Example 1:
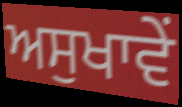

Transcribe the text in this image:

ਅਸੁਖਾਵੇਂ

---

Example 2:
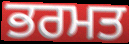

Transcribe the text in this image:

ਭਰਮਤ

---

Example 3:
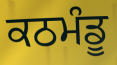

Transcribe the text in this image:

ਕਠਮੰਡੂ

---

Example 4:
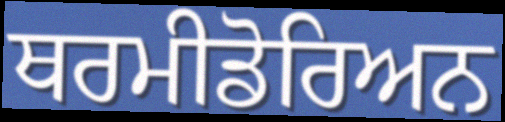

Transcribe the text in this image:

ਥਰਮੀਡੋਰਿਅਨ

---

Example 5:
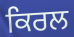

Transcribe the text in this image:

ਕਿਰਲ